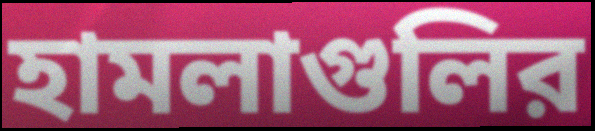
হামলাগুলির